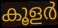
കൂളർ